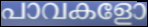
പാവകളോ